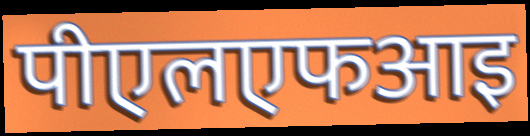
पीएलएफआइ